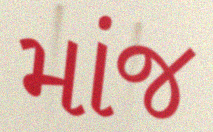
માંજ